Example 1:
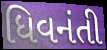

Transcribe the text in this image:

ધિવનંતી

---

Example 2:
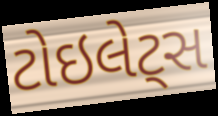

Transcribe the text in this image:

ટોઇલેટ્સ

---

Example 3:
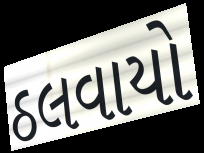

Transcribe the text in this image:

ઠલવાયો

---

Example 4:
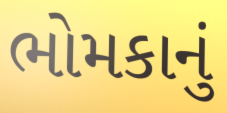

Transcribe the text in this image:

ભોમકાનું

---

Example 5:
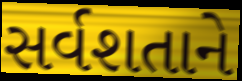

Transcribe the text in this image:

સર્વશતાને